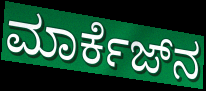
ಮಾರ್ಕೆಜ್‌ನ